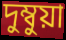
দুম্বুয়া